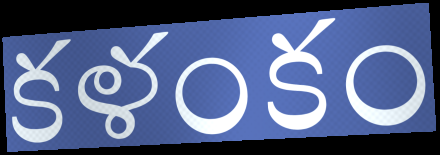
కళంకం